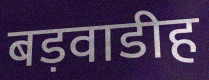
बड़वाडीह